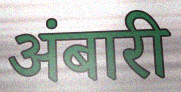
अंबारी